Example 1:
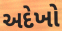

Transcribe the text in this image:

અદેખો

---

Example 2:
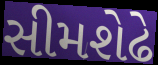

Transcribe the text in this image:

સીમશેઢે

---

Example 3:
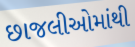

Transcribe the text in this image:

છાજલીઓમાંથી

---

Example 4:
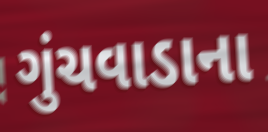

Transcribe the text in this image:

ગુંચવાડાના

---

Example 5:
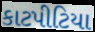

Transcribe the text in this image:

કાટપીટિયા